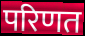
परिणत